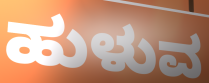
ಹುಳುವ